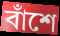
বাঁশে